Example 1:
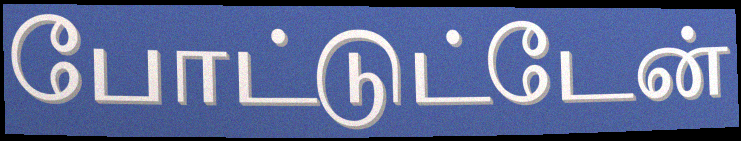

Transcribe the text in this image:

போட்டுட்டேன்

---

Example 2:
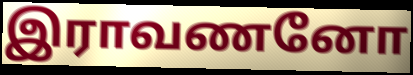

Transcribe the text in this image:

இராவணனோ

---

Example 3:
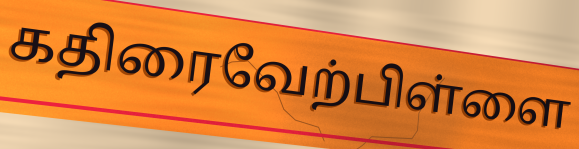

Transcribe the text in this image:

கதிரைவேற்பிள்ளை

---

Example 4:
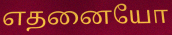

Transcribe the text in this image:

எதனையோ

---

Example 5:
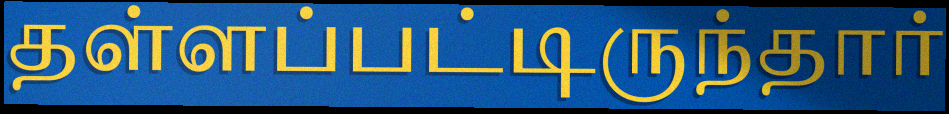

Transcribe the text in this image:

தள்ளப்பட்டிருந்தார்